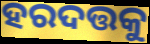
ହରଦତ୍ତକୁ